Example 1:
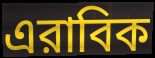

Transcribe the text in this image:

এরাবিক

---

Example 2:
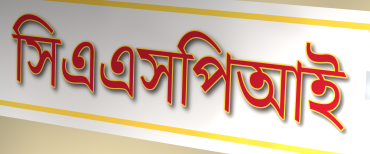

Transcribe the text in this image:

সিএএসপিআই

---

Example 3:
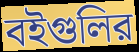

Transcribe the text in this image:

বইগুলির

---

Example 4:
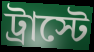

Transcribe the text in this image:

ট্রাস্টে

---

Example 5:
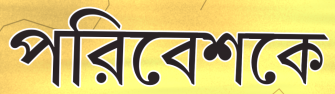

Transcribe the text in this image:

পরিবেশকে